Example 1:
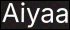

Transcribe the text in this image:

Aiyaa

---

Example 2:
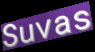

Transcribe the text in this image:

Suvas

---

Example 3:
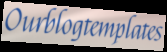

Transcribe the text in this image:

Ourblogtemplates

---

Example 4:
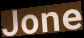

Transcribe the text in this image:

Jone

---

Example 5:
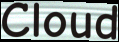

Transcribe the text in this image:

Cloud